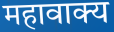
महावाक्य